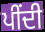
ਪੀਂਦੀ